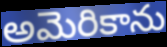
అమెరికాను